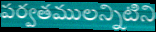
పర్వతములన్నిటిని